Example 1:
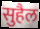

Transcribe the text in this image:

सुहैल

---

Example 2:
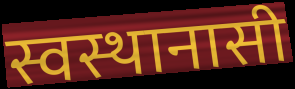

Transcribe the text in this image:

स्वस्थानासी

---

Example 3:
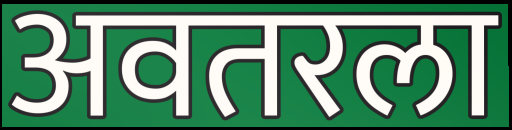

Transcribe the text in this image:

अवतरला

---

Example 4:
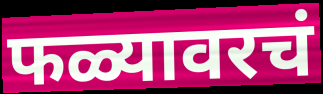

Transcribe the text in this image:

फळ्यावरचं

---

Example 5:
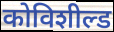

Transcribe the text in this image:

कोविशील्ड